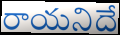
రాయనిదే